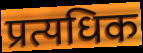
प्रत्यधिक